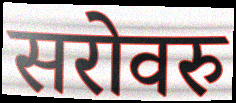
सरोवरु